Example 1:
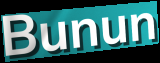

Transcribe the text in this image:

Bunun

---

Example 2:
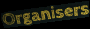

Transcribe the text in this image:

Organisers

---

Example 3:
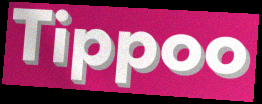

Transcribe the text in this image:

Tippoo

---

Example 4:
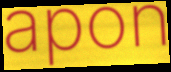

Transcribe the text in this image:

apon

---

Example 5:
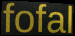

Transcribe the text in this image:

fofal